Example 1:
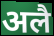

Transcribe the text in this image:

अलै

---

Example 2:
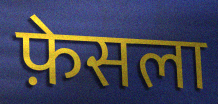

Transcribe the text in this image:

फ़ेसला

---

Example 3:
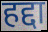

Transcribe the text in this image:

हद्दा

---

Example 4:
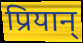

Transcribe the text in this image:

प्रियान्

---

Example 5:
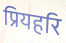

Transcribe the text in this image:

प्रियहरि